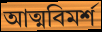
আত্মবিমর্শ